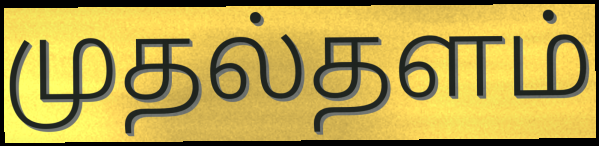
முதல்தளம்